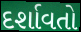
દર્શાવતો